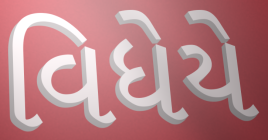
વિધેયે